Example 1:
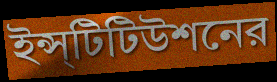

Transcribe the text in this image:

ইন্স্টিটিউশনের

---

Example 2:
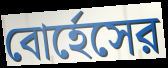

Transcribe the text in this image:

বোর্হেসের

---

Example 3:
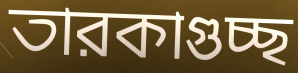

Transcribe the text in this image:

তারকাগুচ্ছ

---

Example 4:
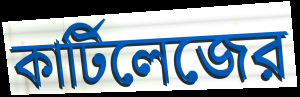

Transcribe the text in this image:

কার্টিলেজের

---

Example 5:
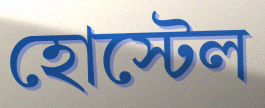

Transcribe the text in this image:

হোস্টেল